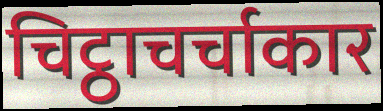
चिट्ठाचर्चाकार